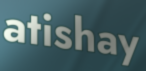
atishay